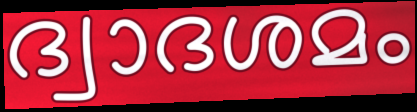
ദ്വാദശമം